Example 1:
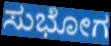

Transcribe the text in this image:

ಸುಭೋಗ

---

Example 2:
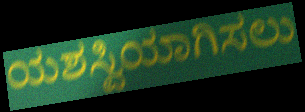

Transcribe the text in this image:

ಯಶಸ್ವಿಯಾಗಿಸಲು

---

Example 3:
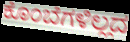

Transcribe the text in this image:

ಕೊಂಬೆಗಳಿಲ್ಲದ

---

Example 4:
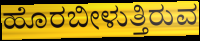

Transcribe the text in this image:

ಹೊರಬೀಳುತ್ತಿರುವ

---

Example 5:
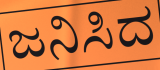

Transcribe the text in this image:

ಜನಿಸಿದ